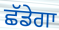
ਛੱਡੇਗਾ